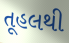
તૂહલથી